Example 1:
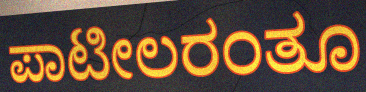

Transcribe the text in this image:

ಪಾಟೀಲರಂತೂ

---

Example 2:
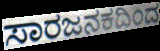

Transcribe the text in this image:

ಸಾರಜನಕದಿಂದ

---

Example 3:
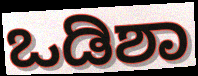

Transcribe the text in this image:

ಒಡಿಶಾ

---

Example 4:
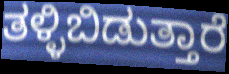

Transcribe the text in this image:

ತಳ್ಳಿಬಿಡುತ್ತಾರೆ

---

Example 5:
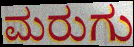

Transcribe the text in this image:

ಮರುಗು